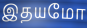
இதயமோ